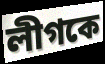
লীগকে